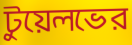
টুয়েলভের